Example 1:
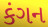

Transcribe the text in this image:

કંગન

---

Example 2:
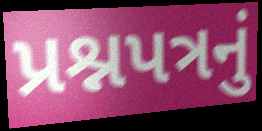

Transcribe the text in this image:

પ્રશ્નપત્રનું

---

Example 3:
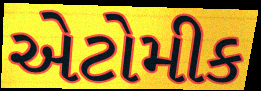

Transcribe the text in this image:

એટોમીક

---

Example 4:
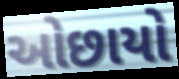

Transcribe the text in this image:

ઓછાયો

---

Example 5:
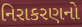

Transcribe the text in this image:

નિરાકરણનો